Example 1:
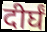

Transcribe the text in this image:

दीर्घं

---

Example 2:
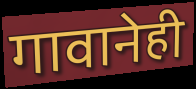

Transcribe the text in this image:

गावानेही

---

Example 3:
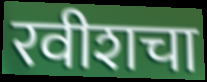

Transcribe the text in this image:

रवीशचा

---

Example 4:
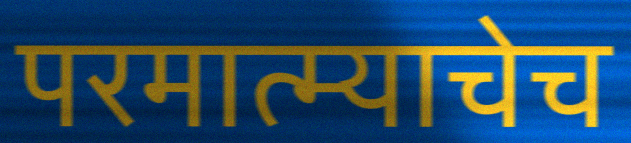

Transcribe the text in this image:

परमात्म्याचेच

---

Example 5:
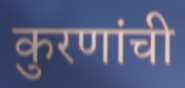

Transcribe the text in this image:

कुरणांची